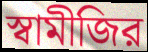
স্বামীজির